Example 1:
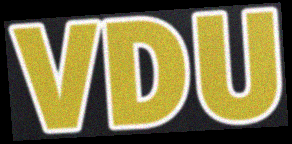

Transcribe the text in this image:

VDU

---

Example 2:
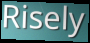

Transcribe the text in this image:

Risely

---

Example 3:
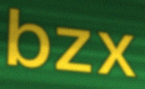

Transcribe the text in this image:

bzx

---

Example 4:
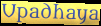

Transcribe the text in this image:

Upadhaya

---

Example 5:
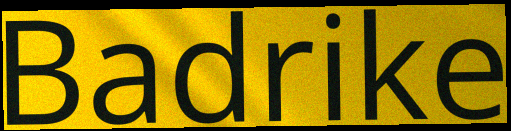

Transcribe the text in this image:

Badrike